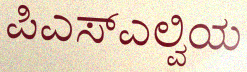
ಪಿಎಸ್ಎಲ್ವಿಯ